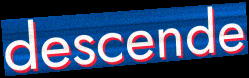
descende